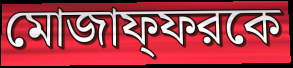
মোজাফ্ফরকে